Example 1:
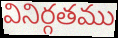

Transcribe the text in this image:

వినిర్గతము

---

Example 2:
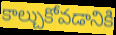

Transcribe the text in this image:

కాల్చుకోవడానికి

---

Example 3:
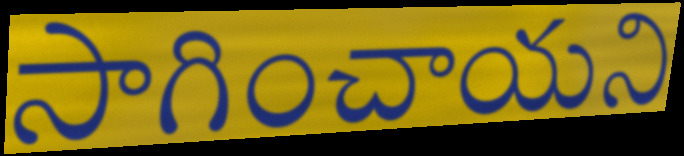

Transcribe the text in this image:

సాగించాయని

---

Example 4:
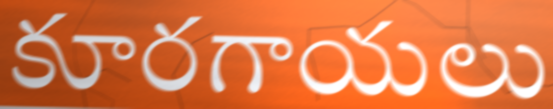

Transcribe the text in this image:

కూరగాయలు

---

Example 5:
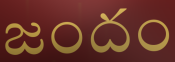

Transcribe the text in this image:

జందం